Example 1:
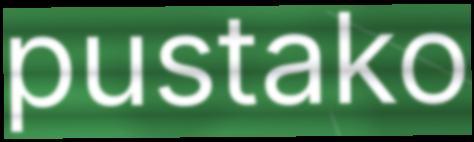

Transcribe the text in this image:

pustako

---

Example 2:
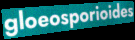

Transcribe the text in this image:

gloeosporioides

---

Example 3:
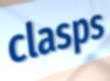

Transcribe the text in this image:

clasps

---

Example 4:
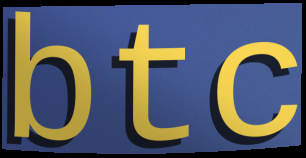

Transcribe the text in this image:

btc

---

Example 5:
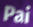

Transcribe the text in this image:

Pai